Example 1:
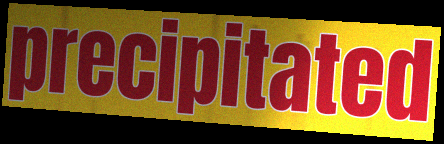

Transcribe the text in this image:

precipitated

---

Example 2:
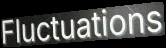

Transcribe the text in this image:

Fluctuations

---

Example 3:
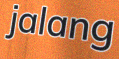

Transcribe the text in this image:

jalang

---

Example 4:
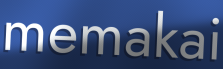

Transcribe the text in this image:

memakai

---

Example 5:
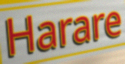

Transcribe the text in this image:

Harare